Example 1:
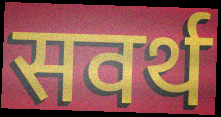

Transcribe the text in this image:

सवर्थ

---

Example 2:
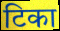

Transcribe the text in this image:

टिका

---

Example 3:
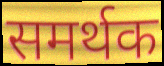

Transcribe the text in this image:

समर्थक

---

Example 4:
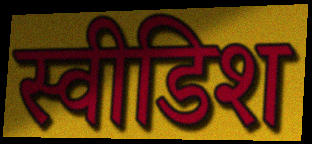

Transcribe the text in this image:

स्वीडिश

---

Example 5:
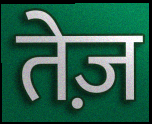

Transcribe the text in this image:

तेज़